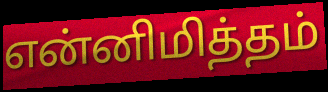
என்னிமித்தம்